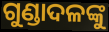
ଗୁଣ୍ଡାଦଳଙ୍କୁ